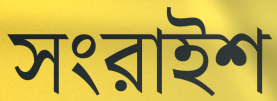
সংরাইশ